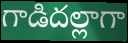
గాడిదల్లాగా